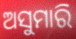
ଅସୁମାରି